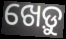
ଖେଡ଼ୁ